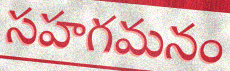
సహగమనం